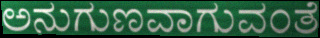
ಅನುಗುಣವಾಗುವಂತೆ